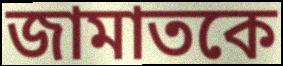
জামাতকে